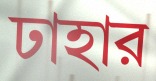
ঢাহার